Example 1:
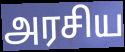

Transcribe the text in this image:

அரசிய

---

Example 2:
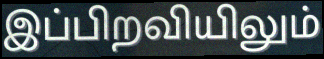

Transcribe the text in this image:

இப்பிறவியிலும்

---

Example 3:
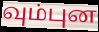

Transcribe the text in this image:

வும்புன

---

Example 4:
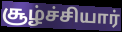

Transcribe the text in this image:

சூழ்ச்சியார்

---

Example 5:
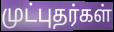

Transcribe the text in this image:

முட்புதர்கள்